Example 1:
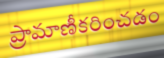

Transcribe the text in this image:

ప్రామాణీకరించడం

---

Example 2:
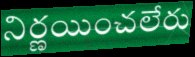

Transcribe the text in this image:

నిర్ణయించలేరు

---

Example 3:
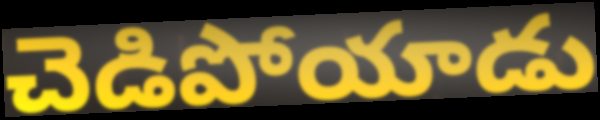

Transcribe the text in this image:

చెడిపోయాడు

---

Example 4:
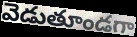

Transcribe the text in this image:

వెడుతూండగా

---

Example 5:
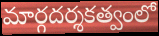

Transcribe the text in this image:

మార్గదర్శకత్వంలో